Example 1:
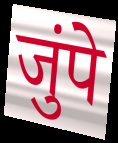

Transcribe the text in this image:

जुंपे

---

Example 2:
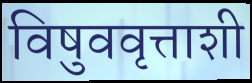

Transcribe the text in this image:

विषुववृत्ताशी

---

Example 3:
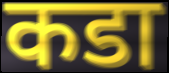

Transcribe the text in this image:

कडा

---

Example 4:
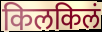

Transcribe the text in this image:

किलकिलं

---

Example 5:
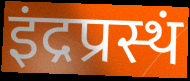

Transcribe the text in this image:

इंद्रप्रस्थं